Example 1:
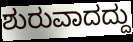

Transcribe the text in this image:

ಶುರುವಾದದ್ದು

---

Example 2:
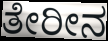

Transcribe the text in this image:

ತೇರೀನ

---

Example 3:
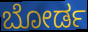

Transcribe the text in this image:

ಬೋರ್ಡ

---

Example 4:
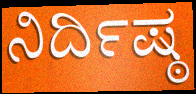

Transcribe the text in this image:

ನಿರ್ದಿಷ್ಠ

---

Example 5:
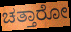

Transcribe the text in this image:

ಚತ್ತಾರೋ